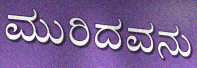
ಮುರಿದವನು